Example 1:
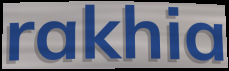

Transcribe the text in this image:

rakhia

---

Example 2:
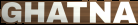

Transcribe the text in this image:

GHATNA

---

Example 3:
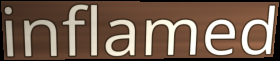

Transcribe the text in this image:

inflamed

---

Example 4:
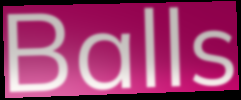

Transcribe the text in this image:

Balls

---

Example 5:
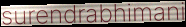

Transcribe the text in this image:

surendrabhimani